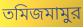
তমিজমামুর